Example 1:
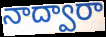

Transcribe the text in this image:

నాద్వారా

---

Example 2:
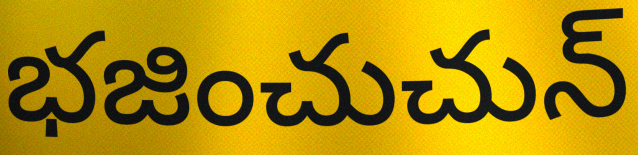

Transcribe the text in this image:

భజించుచున్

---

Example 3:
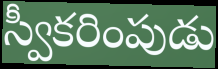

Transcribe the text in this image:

స్వీకరింపుడు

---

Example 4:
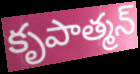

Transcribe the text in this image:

కృపాత్మన్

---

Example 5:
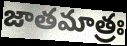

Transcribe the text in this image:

జాతమాత్రః